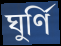
ঘুর্ণি